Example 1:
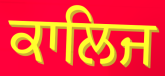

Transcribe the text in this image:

ਕਾਲਿਜ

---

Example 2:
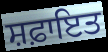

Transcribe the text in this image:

ਸ਼ਫ਼ਾਇਤ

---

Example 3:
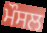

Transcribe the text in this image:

ਮੌਸਲ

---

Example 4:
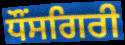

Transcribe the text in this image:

ਧੌਂਸਗਿਰੀ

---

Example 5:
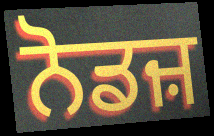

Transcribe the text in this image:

ਨੋਡਜ਼